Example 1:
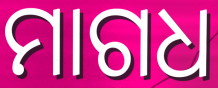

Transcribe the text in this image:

ମାଗଧ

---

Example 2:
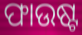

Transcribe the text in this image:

ଫାଉଷ୍ଟ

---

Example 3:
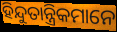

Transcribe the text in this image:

ହିନ୍ଦୁତାନ୍ତ୍ରିକମାନେ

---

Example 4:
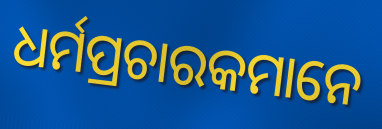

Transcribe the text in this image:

ଧର୍ମପ୍ରଚାରକମାନେ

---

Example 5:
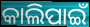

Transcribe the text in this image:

କାଲିପାଇଁ